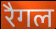
रैगल